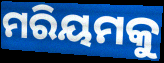
ମରିୟମକୁ